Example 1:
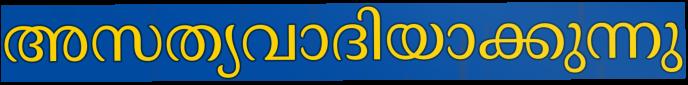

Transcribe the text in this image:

അസത്യവാദിയാക്കുന്നു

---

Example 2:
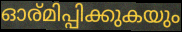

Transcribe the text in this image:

ഓര്മിപ്പിക്കുകയും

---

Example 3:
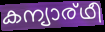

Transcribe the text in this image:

കന്യാര്ഥീ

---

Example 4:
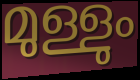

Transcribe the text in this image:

മുള്ളും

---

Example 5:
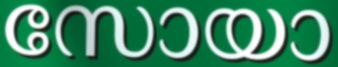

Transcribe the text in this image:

സോയാ